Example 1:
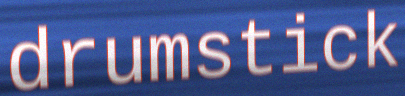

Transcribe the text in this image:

drumstick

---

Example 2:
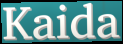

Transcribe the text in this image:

Kaida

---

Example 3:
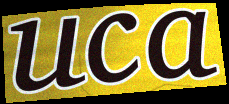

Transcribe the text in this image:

uca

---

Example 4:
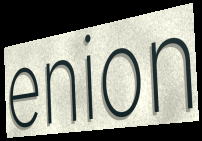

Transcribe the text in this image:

enion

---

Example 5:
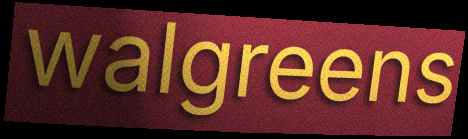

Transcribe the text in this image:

walgreens